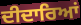
ਦੀਦਾਰਿਆਂ